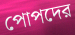
পোপদের